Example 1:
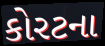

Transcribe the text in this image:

કોરટના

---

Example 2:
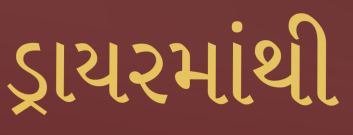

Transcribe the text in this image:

ડ્રાયરમાંથી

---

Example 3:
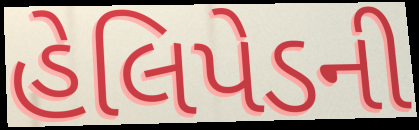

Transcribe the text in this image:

હેલિપેડની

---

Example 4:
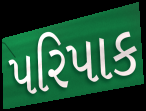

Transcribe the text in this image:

પરિપાક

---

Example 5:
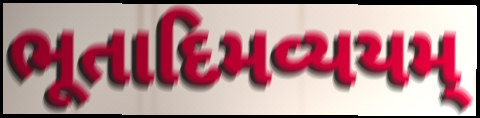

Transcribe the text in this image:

ભૂતાદિમવ્યયમ્